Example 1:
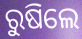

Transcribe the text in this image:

ରୁଷିଲେ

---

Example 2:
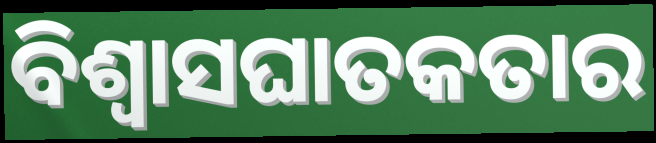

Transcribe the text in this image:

ବିଶ୍ଵାସଘାତକତାର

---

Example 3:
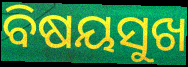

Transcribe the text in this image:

ବିଷୟସୁଖ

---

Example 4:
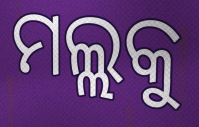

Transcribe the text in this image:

ମଲ୍ଲକୁ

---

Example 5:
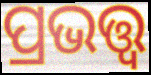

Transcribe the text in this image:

ପ୍ରଭତ୍ତ୍ଵ